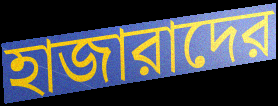
হাজারাদের